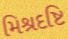
મિશ્રદષ્ટિ